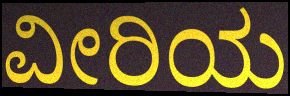
ವೀರಿಯ